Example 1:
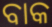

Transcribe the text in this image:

ବାକ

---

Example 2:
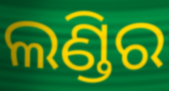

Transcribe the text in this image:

ଲଣ୍ଡିର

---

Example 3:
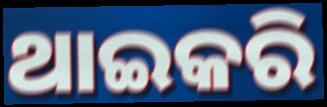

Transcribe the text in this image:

ଥାଇକରି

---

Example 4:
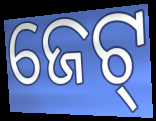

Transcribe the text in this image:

ଜେଟ୍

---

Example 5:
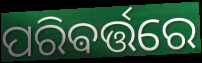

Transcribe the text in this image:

ପରିଵର୍ତ୍ତରେ